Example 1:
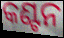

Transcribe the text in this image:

କଣ୍ଟନ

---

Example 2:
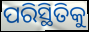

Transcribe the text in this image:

ପରିସ୍ଥିତିକୁ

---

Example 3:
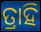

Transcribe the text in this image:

ତ୍ରାହି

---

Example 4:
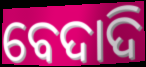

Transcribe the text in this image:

ବେଦାଦି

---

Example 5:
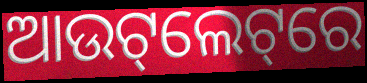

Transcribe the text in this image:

ଆଉଟ୍‌ଲେଟ୍‌ରେ